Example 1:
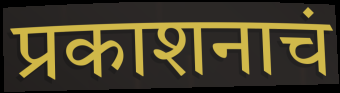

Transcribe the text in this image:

प्रकाशनाचं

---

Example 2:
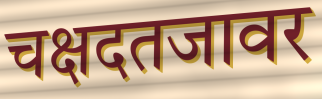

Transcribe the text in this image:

चक्षदतजावर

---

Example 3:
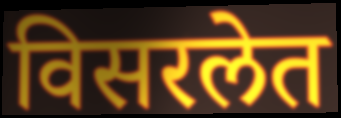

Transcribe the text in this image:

विसरलेत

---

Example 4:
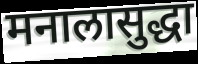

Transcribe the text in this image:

मनालासुद्धा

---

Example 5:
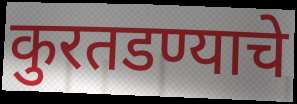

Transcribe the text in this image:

कुरतडण्याचे